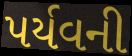
પર્યવની